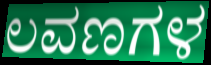
ಲವಣಗಳ